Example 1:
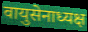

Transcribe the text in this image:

वायुसेनाध्यक्ष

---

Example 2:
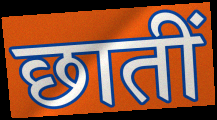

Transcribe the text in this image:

छातीं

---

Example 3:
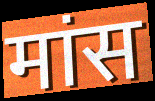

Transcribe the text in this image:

मांस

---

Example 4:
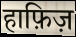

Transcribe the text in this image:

हाफ़िज़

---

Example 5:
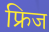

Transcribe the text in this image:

फ्रिज